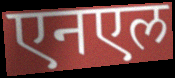
एनएल